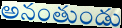
అనంతుండు